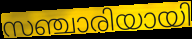
സഞ്ചാരിയായി